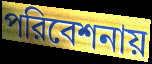
পরিবেশনায়